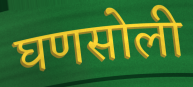
घणसोली